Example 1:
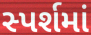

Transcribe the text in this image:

સ્પર્શમાં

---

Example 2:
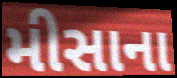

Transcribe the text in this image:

મીસાના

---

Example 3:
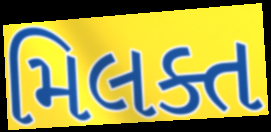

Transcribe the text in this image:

મિલક્ત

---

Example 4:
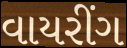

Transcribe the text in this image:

વાયરીંગ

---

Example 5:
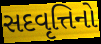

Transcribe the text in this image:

સદવૃત્તિનો